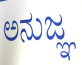
ಅನುಜ್ಞ